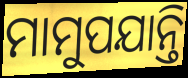
ମାମୁପଯାନ୍ତି